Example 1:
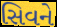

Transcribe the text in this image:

સિવને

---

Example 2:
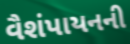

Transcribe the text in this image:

વૈશંપાયનની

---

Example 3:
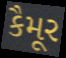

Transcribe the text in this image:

કૈમૂર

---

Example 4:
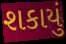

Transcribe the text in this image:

શકાયું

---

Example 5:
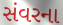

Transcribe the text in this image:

સંવરના